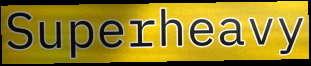
Superheavy